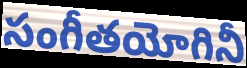
సంగీతయోగినీ